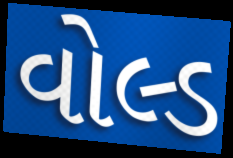
વોલ્ડ